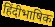
हिंदीभाषिक